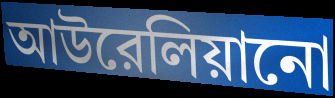
আউরেলিয়ানো